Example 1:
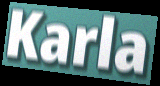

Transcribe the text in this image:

Karla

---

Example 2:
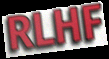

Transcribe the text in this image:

RLHF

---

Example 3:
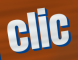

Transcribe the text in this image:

clic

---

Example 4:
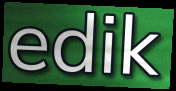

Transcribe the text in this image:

edik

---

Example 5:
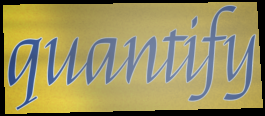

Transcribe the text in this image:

quantify